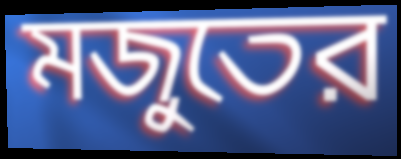
মজুতের